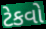
ટેકવો